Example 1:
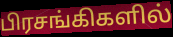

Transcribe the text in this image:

பிரசங்கிகளில்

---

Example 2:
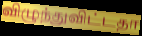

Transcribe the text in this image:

விழுந்துவிட்டதா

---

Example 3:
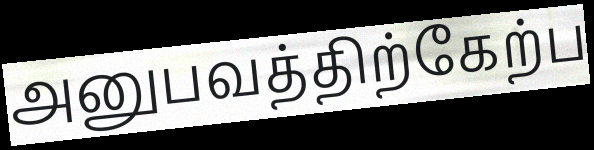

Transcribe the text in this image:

அனுபவத்திற்கேற்ப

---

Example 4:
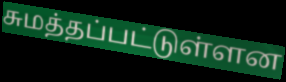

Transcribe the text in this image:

சுமத்தப்பட்டுள்ளன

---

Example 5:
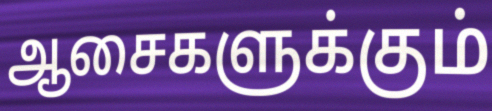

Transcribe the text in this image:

ஆசைகளுக்கும்